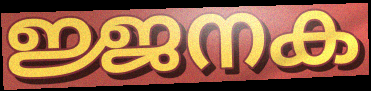
ജ്ജനക